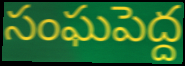
సంఘపెద్ద